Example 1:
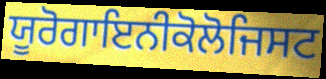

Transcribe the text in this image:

ਯੂਰੋਗਾਇਨੀਕੋਲੋਜਿਸਟ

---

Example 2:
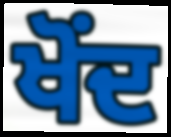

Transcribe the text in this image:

ਖੋਂਦ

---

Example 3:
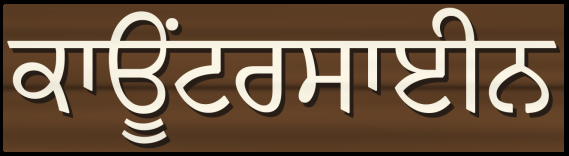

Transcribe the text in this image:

ਕਾਊਂਟਰਸਾਈਨ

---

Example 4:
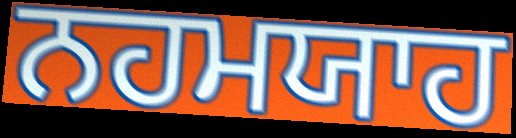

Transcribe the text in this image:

ਨਹਮਯਾਹ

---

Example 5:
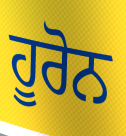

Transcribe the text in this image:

ਹੂਰੋਨ